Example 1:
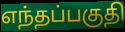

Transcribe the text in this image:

எந்தப்பகுதி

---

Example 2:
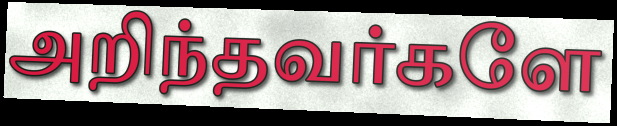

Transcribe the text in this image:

அறிந்தவர்களே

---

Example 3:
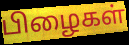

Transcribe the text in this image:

பிழைகள்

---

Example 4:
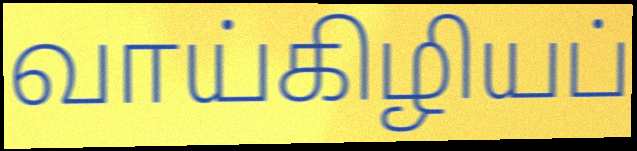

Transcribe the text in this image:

வாய்கிழியப்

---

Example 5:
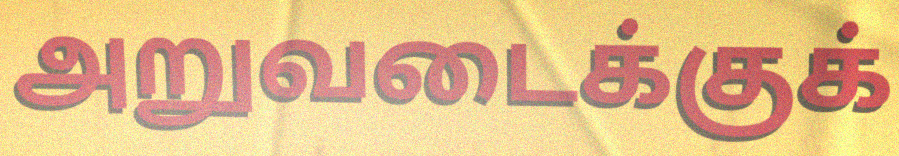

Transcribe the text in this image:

அறுவடைக்குக்